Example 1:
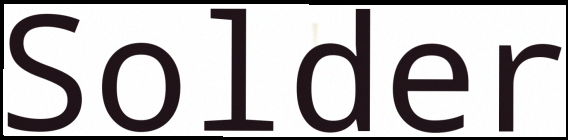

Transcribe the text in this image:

Solder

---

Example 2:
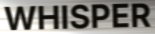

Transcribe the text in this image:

WHISPER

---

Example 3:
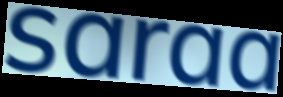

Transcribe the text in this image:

saraa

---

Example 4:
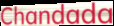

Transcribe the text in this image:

Chandada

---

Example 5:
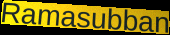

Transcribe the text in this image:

Ramasubban